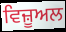
ਵਿਜ਼ੂਅਲ